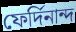
ফের্দিনান্দ